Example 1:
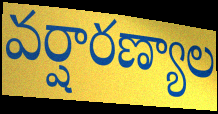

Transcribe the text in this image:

వర్షారణ్యాల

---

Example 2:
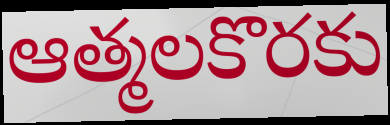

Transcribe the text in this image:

ఆత్మలకొరకు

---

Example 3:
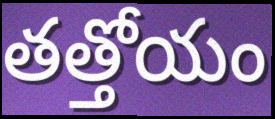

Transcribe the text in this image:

తత్తోయం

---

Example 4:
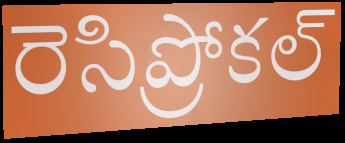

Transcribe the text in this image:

రెసిప్రోకల్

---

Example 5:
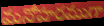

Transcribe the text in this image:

మనోహరముగా